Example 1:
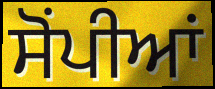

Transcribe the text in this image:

ਸੋਂਪੀਆਂ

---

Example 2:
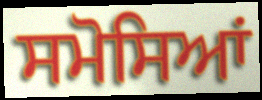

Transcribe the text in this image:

ਸਮੋਸਿਆਂ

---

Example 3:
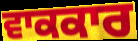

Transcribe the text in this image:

ਵਾਕਕਾਰ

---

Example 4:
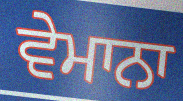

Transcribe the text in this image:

ਵੇਮਾਨਾ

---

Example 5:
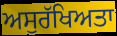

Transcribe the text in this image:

ਅਸੁਰੱਖਿਅਤਾ